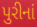
પુરીનાં